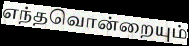
எந்தவொன்றையும்